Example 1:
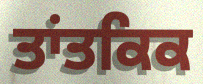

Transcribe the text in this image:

ਤਾਂਤਕਿਕ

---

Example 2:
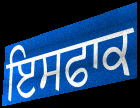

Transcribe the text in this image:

ਇਸਫਾਕ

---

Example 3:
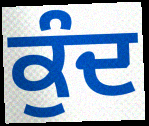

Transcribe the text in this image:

ਕੁੰਦ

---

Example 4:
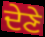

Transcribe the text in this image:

ਦੇਣੇ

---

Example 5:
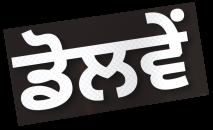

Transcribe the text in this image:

ਡੋਲਵੇਂ